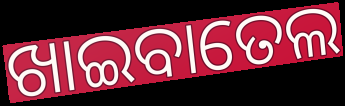
ଖାଇବାତେଲ